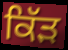
ਕਿੱੜ